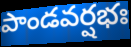
పాండవర్షభః